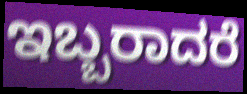
ಇಬ್ಬರಾದರೆ